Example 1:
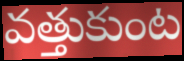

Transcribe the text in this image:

వత్తుకుంట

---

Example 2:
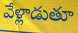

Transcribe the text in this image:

వేళ్లాడుతూ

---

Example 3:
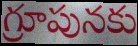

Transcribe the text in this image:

గ్రూపునకు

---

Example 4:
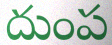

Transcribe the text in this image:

దుంప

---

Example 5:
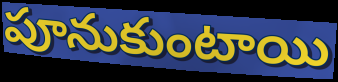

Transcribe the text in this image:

పూనుకుంటాయి